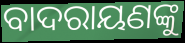
ବାଦରାୟଣଙ୍କୁ